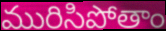
మురిసిపోతాం